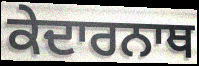
ਕੇਦਾਰਨਾਥ